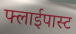
फ्लाईपास्ट